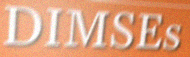
DIMSEs